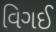
વિગઈ